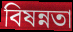
বিষন্নতা